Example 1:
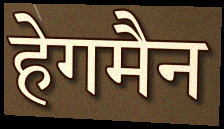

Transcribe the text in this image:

हेगमैन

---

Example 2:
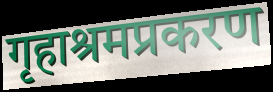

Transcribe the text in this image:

गृहाश्रमप्रकरण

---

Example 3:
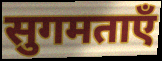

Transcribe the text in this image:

सुगमताएँ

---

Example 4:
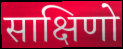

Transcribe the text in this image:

साक्षिणो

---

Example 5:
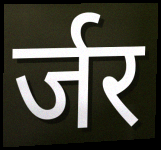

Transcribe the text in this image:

र्जर